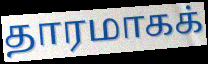
தாரமாகக்